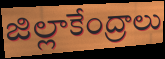
జిల్లాకేంద్రాలు